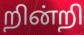
றின்றி